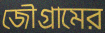
জৌগ্রামের